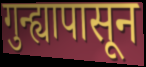
गुन्ह्यापासून